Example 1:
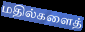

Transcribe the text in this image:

மதில்களைத்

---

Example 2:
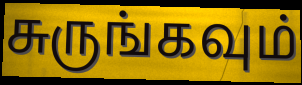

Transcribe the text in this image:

சுருங்கவும்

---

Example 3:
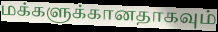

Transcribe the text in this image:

மக்களுக்கானதாகவும்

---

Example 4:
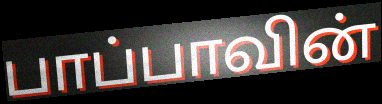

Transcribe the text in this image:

பாப்பாவின்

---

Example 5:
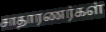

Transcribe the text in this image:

சாதாரணர்கள்